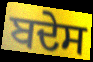
ਬਦੇਸ